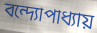
বন্দ্যোপাধ্যায়